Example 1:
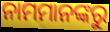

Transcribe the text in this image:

ନାମମାନଙ୍କରୁ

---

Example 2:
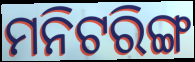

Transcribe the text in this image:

ମନିଟରିଙ୍ଗ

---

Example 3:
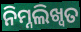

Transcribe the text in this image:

ନିମ୍ନଲିଖ୍ବତ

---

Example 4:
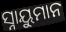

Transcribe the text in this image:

ସ୍ନାୟୁମାନ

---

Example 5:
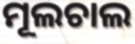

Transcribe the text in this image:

ମୂଲଚାଲ